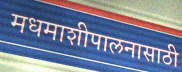
मधमाशीपालनासाठी